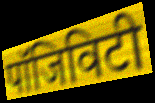
पॉजिविटी